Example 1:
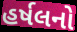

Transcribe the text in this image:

હર્ષલનો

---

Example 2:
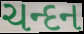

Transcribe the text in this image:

ચન્દન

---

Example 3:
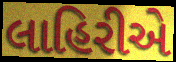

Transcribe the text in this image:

લાહિરીએ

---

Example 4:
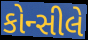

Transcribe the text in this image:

કોન્સીલે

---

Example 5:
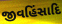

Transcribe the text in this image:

જીવહિંસાદિ